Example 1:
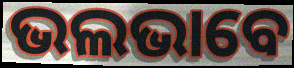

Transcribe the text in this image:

ଭଲଭାବେ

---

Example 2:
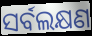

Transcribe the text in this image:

ସର୍ବଲକ୍ଷଣ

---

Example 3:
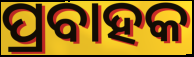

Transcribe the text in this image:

ପ୍ରବାହକ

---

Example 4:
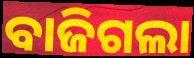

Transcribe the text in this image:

ବାଜିଗଲା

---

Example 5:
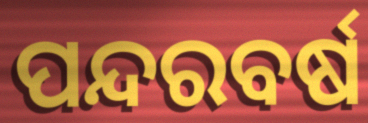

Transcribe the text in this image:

ପନ୍ଦରବର୍ଷ